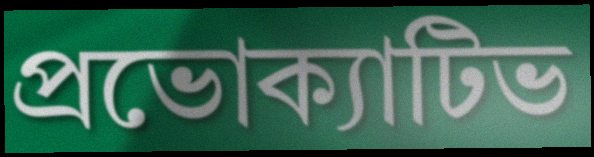
প্রভোক্যাটিভ